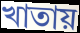
খাতায়